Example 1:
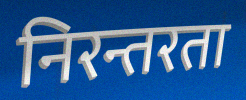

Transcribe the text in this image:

निरन्तरता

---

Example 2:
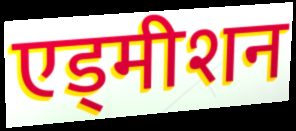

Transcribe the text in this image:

एड्मीशन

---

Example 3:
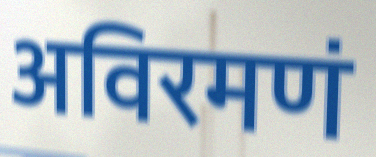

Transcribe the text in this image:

अविरमणं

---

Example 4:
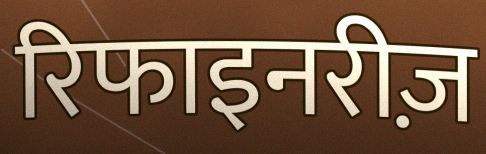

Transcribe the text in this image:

रिफाइनरीज़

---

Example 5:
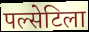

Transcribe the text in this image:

पल्सेटिला